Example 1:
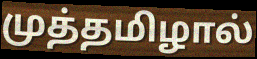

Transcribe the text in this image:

முத்தமிழால்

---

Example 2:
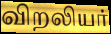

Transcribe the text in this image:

விறலியர்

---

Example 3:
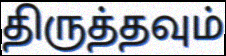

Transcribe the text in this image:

திருத்தவும்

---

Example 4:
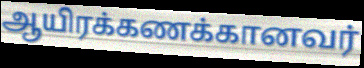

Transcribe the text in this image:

ஆயிரக்கணக்கானவர்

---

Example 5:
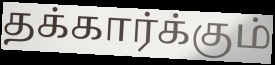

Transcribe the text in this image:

தக்கார்க்கும்